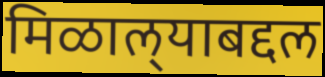
मिळाल्याबद्दल